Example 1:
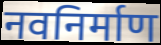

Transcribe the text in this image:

नवनिर्माण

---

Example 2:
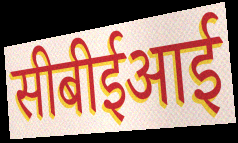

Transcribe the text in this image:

सीबीईआई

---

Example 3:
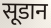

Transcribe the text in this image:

सूडान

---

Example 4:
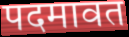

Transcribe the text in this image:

पदमावत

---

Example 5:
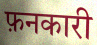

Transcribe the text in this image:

फ़नकारी